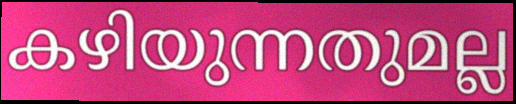
കഴിയുന്നതുമല്ല